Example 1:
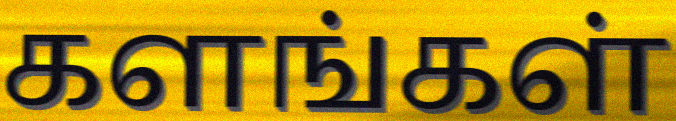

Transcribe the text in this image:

களங்கள்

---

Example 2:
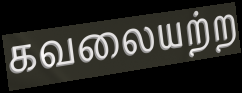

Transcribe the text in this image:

கவலையற்ற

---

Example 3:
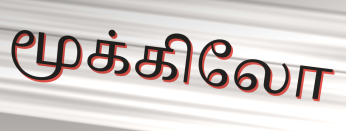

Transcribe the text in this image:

மூக்கிலோ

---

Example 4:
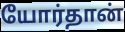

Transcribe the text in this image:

யோர்தான்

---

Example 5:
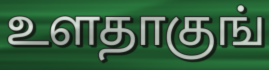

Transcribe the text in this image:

உளதாகுங்